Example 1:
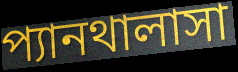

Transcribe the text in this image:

প্যানথালাসা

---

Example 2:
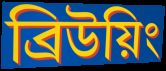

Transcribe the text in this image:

ব্রিউয়িং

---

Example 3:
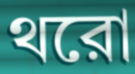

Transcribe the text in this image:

থরো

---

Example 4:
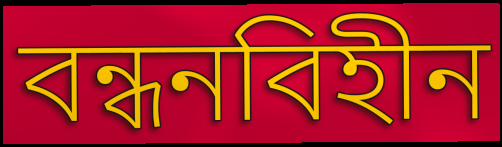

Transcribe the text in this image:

বন্ধনবিহীন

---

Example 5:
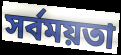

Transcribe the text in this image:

সর্বময়তা